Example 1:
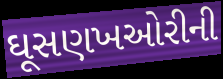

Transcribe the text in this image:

ઘૂસણખઓરીની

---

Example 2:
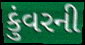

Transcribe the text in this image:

કુંવરની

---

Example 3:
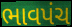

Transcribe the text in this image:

ભાવપંચ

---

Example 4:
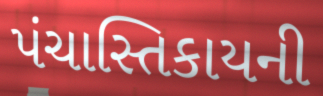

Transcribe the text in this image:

પંચાસ્તિકાયની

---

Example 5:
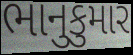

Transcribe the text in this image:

ભાનુકુમાર